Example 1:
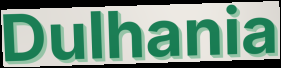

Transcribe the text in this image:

Dulhania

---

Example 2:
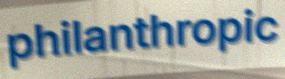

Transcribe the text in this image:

philanthropic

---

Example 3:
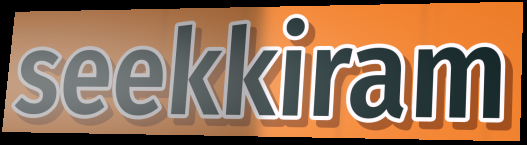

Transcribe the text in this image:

seekkiram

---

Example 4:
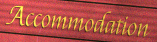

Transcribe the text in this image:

Accommodation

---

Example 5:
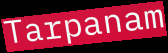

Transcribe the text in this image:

Tarpanam